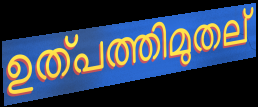
ഉത്പത്തിമുതല്